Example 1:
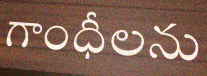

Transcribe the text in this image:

గాంధీలను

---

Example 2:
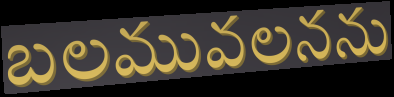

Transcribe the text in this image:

బలమువలనను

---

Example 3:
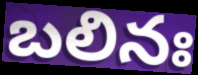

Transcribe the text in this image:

బలినః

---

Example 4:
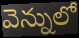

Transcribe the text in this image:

వెన్నులో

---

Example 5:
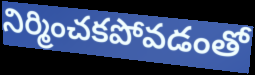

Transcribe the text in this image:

నిర్మించకపోవడంతో